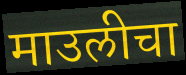
माउलीचा